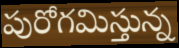
పురోగమిస్తున్న